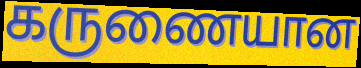
கருணையான